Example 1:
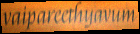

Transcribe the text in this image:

vaipareethyavum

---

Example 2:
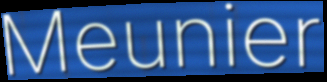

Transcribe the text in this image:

Meunier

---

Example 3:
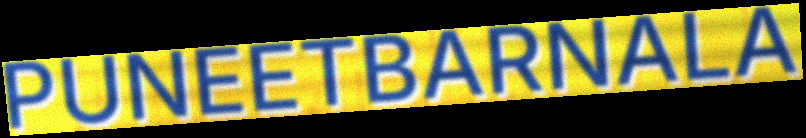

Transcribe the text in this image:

PUNEETBARNALA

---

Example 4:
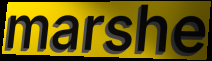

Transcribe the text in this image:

marshe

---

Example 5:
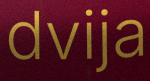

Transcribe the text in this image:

dvija